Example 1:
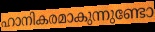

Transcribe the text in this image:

ഹാനികരമാകുന്നുണ്ടോ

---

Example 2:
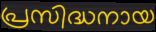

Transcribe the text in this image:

പ്രസിദ്ധനായ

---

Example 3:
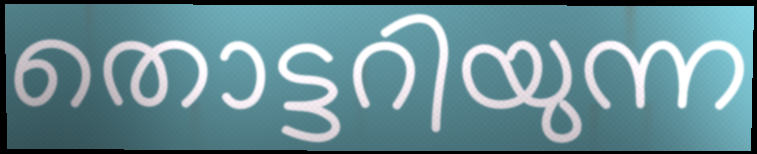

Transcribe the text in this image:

തൊട്ടറിയുന്ന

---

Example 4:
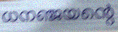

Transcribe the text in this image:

ധനഞ്ജയന്റെ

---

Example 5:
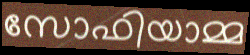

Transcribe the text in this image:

സോഫിയാമ്മ